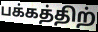
பக்கத்திற்